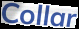
Collar